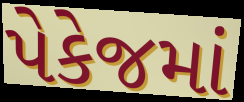
પેકેજમાં